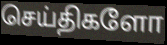
செய்திகளோ